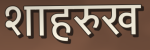
शाहरुख